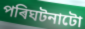
পৰিঘটনাটো